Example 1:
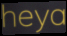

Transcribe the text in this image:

heya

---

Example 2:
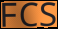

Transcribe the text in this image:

FCS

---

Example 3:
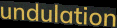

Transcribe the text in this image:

undulation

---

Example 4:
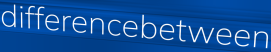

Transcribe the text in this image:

differencebetween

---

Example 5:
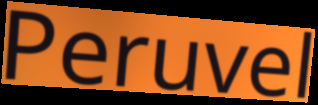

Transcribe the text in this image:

Peruvel